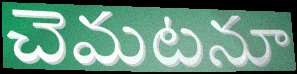
చెమటనూ